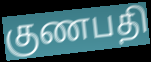
குணபதி